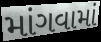
માંગવામાં